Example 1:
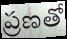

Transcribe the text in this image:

ప్రణతో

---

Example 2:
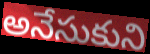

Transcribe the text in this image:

అనేసుకుని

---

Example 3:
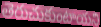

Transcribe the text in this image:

తెరుచుకుంటాయని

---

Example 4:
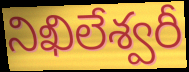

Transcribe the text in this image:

నిఖిలేశ్వరీ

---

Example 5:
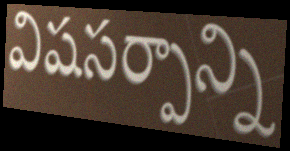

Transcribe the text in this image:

విషసర్పాన్ని